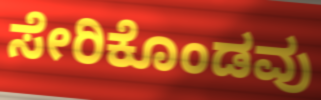
ಸೇರಿಕೊಂಡವು